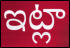
ఇట్లా